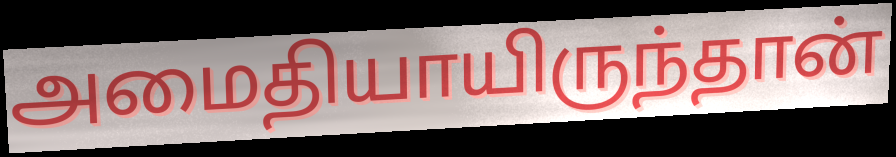
அமைதியாயிருந்தான்